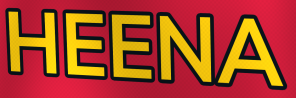
HEENA